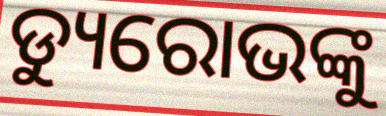
ଡ୍ୟୁରୋଭଙ୍କୁ